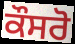
ਕੌਸਰੋ